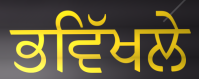
ਭਵਿੱਖਲੇ